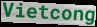
Vietcong